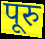
पूरु